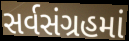
સર્વસંગ્રહમાં